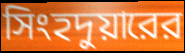
সিংহদুয়ারের